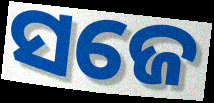
ସଜେ